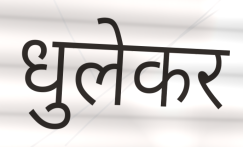
धुलेकर